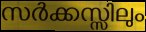
സർക്കസ്സിലും